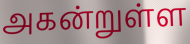
அகன்றுள்ள